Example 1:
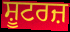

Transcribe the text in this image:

ਸ਼ੂਟਰਜ਼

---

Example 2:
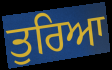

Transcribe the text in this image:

ਤੁਰਿਆ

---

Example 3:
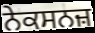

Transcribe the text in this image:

ਨੇਕਸਨਜ਼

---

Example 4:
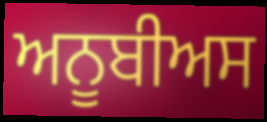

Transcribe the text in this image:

ਅਨੂਬੀਅਸ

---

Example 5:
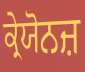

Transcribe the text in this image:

ਕ੍ਰੇਯੋਨਜ਼